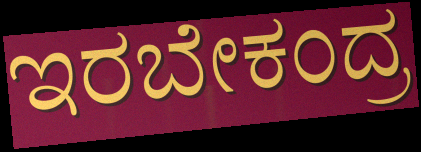
ಇರಬೇಕಂದ್ರ